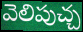
వెలిపుచ్చ